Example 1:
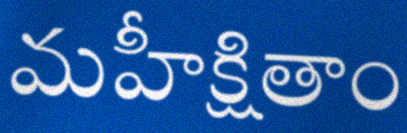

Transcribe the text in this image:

మహీక్షితాం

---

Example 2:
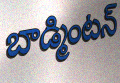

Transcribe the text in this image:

బాడ్మింటన్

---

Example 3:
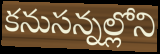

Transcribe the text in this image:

కనుసన్నల్లోని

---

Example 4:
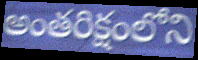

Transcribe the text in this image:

అంతరిక్షంలోని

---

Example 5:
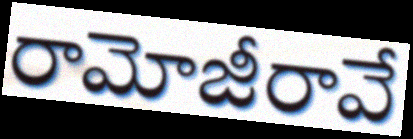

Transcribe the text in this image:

రామోజీరావే